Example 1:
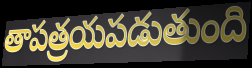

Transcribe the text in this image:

తాపత్రయపడుతుంది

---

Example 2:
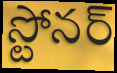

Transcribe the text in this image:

స్టోనర్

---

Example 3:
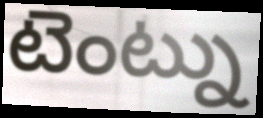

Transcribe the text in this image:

టెంట్ను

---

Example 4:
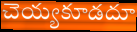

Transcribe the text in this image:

చెయ్యకూడదూ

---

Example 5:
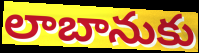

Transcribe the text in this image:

లాబానుకు